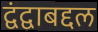
द्वंद्वाबद्दल